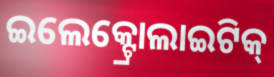
ଇଲେକ୍ଟ୍ରୋଲାଇଟିକ୍